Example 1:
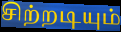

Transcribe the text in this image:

சிற்றடியும்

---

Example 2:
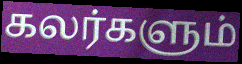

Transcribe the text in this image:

கலர்களும்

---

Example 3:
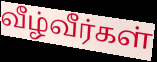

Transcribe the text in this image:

வீழ்வீர்கள்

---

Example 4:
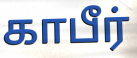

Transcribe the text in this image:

காபீர்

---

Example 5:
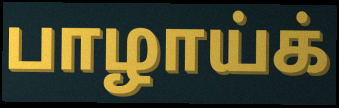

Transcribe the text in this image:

பாழாய்க்